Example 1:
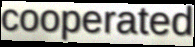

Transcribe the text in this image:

cooperated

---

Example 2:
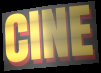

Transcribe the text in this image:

CINE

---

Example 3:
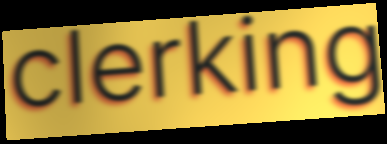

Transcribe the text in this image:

clerking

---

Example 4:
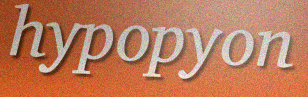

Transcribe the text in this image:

hypopyon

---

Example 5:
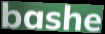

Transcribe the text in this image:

bashe